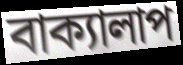
বাক্যালাপ